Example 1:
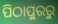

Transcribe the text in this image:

ପିଠାପୁରରୁ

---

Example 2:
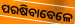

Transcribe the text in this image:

ପରଷିବାବେଳେ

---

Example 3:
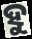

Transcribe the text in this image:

ହୁ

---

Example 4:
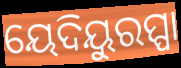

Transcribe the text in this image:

ୟେଦିୟୁରପ୍ପା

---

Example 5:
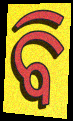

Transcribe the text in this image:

ବି